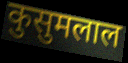
कुसुमलाल